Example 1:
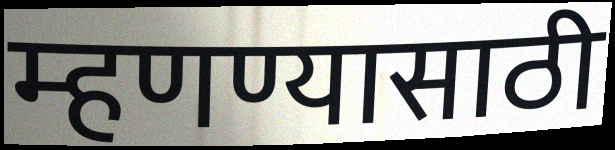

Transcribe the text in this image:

म्हणण्यासाठी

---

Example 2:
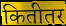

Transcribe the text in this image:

कितीतर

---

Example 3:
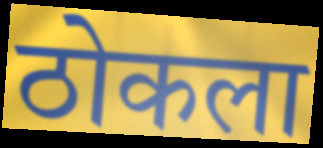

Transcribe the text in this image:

ठोकला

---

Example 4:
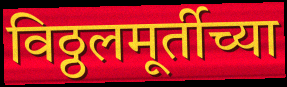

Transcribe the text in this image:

विठ्ठलमूर्तीच्या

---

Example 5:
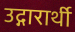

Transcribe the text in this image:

उद्गारार्थी